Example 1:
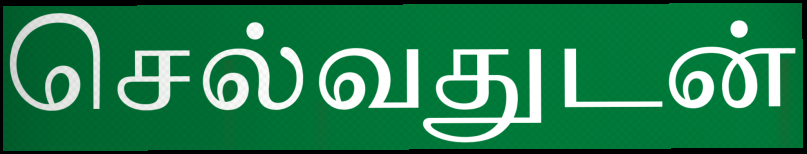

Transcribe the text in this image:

செல்வதுடன்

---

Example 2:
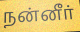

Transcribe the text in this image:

நன்னீர்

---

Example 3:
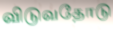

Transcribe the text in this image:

விடுவதோடு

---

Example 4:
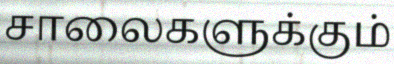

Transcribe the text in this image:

சாலைகளுக்கும்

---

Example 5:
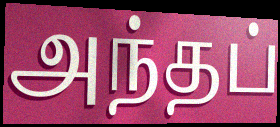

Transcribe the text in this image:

அந்தப்